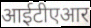
आईटीएआर